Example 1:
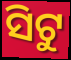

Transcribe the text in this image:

ସିଟୁ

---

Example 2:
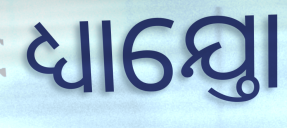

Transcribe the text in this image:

ଧ୍ୟାଯ୍ତୋ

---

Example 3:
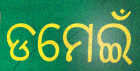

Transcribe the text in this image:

ଡମେଇଁ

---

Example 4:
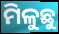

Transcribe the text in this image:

ମିଳୁଛୁ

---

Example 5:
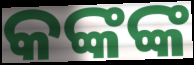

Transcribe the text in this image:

କଙ୍କଙ୍କ